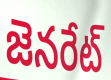
జెనరేట్